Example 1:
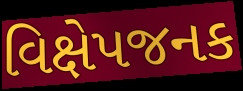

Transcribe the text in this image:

વિક્ષેપજનક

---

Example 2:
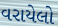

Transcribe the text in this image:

વરાયેલો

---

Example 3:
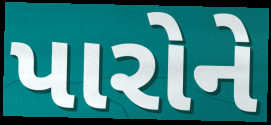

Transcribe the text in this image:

પારોને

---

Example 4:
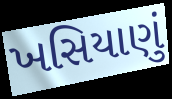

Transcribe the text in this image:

ખસિયાણું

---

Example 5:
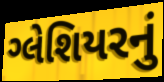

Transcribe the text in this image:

ગ્લેશિયરનું